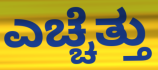
ಎಚ್ಚೆತ್ತು